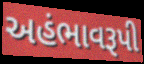
અહંભાવરૂપી